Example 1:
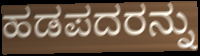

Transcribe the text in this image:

ಹಡಪದರನ್ನು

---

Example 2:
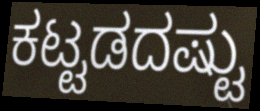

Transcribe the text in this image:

ಕಟ್ಟಡದಷ್ಟು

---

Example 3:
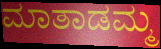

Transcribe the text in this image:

ಮಾತಾಡಮ್ಮ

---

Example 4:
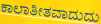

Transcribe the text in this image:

ಕಾಲಾತೀತವಾದುದು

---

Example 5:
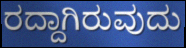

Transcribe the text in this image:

ರದ್ದಾಗಿರುವುದು